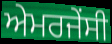
ਅੇਮਰਜੇਂਸੀ